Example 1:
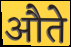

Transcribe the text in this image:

औते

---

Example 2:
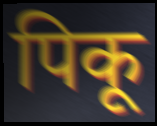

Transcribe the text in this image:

पिकू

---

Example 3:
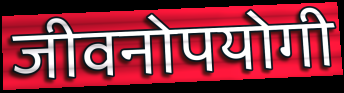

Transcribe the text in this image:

जीवनोपयोगी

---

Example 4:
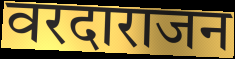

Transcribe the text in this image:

वरदाराजन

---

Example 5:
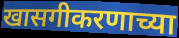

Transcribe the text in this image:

खासगीकरणाच्या